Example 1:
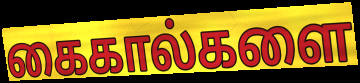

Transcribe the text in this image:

கைகால்களை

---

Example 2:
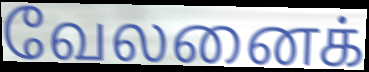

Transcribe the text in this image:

வேலனைக்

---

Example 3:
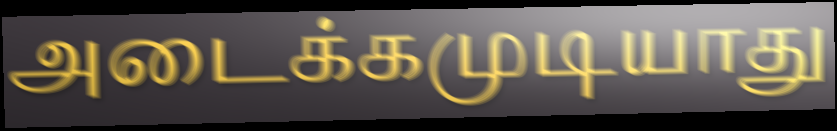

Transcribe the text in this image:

அடைக்கமுடியாது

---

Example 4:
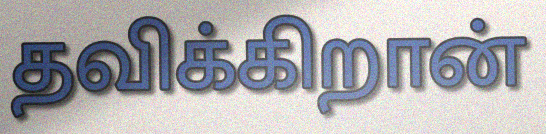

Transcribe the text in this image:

தவிக்கிறான்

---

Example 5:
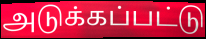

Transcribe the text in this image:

அடுக்கப்பட்டு